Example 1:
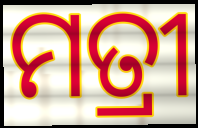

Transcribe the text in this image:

ମତ୍ରୀ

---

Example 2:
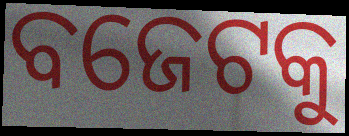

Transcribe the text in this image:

ବଜେଟକୁ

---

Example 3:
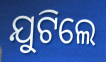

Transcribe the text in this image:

ଯୁଟିଲେ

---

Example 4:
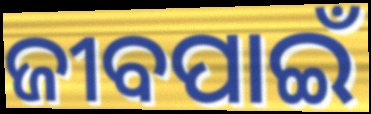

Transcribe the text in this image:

ଜୀବପାଇଁ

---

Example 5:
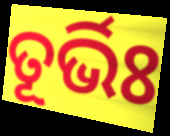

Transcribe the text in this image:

ତୂର୍ଭିଃ